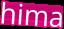
hima